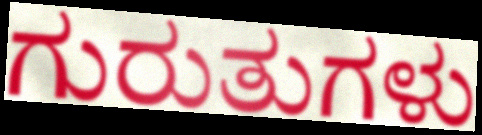
ಗುರುತುಗಳು